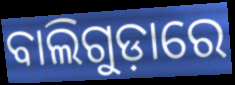
ବାଲିଗୁଡ଼ାରେ